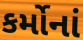
કર્મોનાં